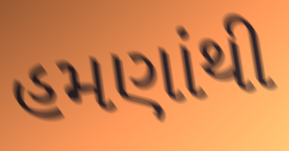
હમણાંથી